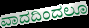
ವಾದದಿಂದಲೂ